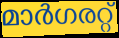
മാർഗരറ്റ്